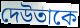
দেউতাকে